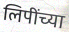
लिपींच्या